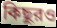
কিছুরও